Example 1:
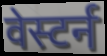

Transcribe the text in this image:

वेस्टर्न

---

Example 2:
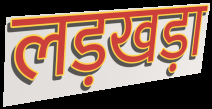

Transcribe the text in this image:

लड़खड़ा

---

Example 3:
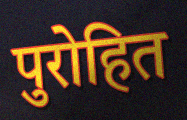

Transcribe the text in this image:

पुरोहित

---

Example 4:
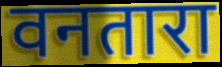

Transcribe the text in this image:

वनतारा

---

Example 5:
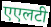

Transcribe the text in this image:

एएलटी